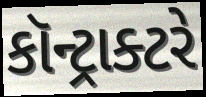
કૉન્ટ્રાક્ટરે